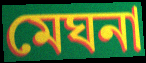
মেঘনা